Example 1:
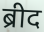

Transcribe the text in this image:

ब्रीद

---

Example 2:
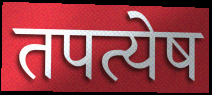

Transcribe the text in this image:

तपत्येष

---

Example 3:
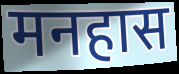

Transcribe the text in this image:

मनहास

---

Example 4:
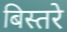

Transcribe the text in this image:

बिस्तरे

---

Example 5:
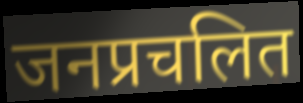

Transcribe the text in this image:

जनप्रचलित